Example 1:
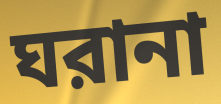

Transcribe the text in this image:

ঘরানা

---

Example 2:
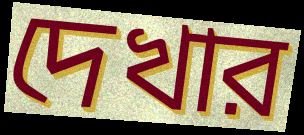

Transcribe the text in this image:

দেখার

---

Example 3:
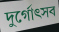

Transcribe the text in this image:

দুর্গোৎসব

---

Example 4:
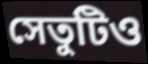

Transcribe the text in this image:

সেতুটিও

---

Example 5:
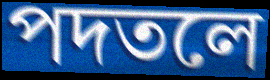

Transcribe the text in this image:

পদতলে